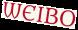
WEIBO